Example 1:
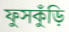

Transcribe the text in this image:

ফুসকুঁড়ি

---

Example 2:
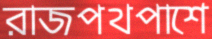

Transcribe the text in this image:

রাজপথপাশে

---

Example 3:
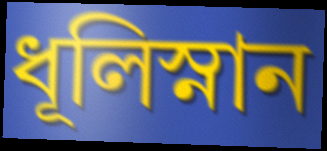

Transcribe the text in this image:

ধূলিস্নান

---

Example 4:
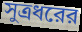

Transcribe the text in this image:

সুত্রধরের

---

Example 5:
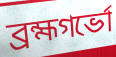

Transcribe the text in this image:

ব্রহ্মগর্ভো